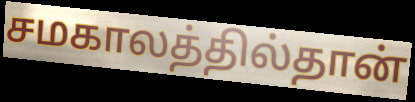
சமகாலத்தில்தான்